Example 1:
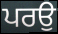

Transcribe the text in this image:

ਪਰਉ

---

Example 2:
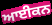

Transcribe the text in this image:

ਆਈਕਨ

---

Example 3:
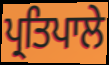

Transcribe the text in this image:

ਪ੍ਰਤਿਪਾਲੇ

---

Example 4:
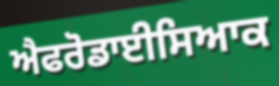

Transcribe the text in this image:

ਐਫਰੋਡਾਈਸਿਆਕ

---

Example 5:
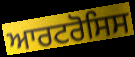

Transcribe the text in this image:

ਆਰਟਰੋਸਿਸ